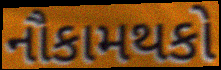
નૌકામથકો